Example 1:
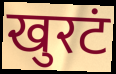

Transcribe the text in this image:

खुरटं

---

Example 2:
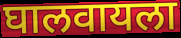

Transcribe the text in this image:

घालवायला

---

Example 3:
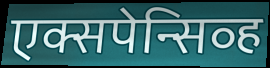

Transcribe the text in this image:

एक्सपेन्सिव्ह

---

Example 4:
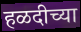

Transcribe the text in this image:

हळदीच्या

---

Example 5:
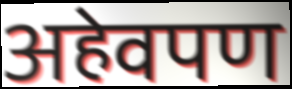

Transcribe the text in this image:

अहेवपण